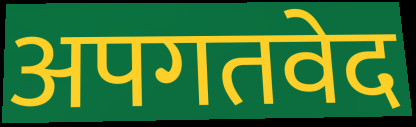
अपगतवेद